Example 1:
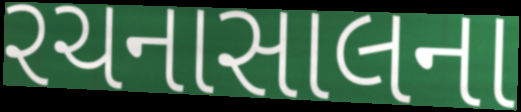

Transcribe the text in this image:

રચનાસાલના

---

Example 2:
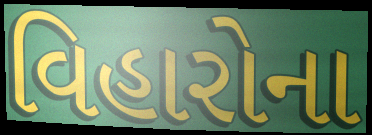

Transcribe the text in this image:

વિહારોના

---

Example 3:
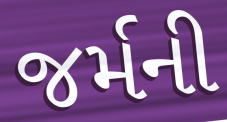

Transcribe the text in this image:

જર્મની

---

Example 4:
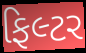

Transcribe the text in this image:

ફિલ્ટર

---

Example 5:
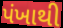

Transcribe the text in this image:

પંખાથી